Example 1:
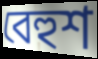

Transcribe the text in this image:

বেহুশ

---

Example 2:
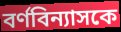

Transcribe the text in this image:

বর্ণবিন্যাসকে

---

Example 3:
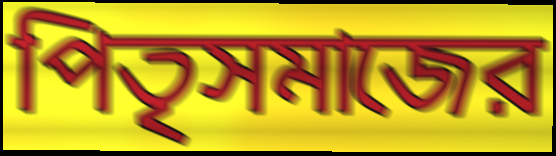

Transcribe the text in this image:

পিতৃসমাজের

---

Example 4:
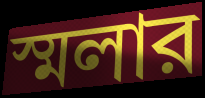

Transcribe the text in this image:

স্মলার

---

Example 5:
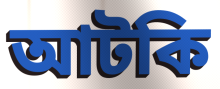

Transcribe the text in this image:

আটকি